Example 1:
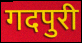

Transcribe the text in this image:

गदपुरी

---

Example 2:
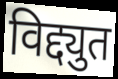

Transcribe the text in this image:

विद्द्युत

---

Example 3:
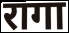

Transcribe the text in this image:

रागा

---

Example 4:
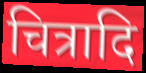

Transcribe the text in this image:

चित्रादि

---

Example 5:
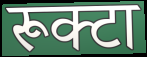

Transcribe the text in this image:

रूक्टा